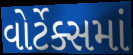
વોર્ટેક્સમાં